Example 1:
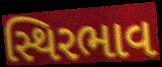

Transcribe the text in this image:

સ્થિરભાવ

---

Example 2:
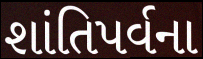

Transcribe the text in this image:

શાંતિપર્વના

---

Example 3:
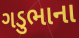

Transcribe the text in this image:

ગડુભાના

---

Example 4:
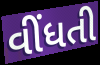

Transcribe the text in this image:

વીંધતી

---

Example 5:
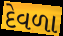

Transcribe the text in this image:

દેવળા